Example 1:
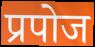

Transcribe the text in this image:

प्रपोज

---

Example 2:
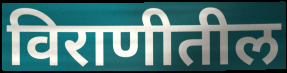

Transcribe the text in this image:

विराणीतील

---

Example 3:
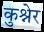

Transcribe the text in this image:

कुश्नेर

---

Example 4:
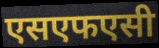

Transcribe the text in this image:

एसएफएसी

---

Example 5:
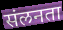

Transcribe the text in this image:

संलनता